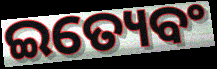
ଇତ୍ୟେବଂ